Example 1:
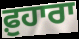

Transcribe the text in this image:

ਫ਼ੁਹਾਰਾ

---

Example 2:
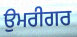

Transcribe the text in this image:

ਉਮਰੀਗਰ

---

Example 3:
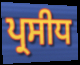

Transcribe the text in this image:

ਪ੍ਰਸੀਧ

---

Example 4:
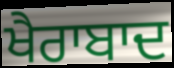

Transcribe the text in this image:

ਖੈਰਾਬਾਦ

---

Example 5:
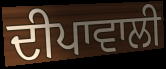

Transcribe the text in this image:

ਦੀਪਾਵਾਲੀ